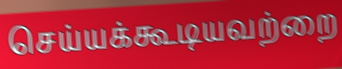
செய்யக்கூடியவற்றை